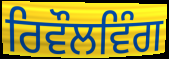
ਰਿਵੌਲਵਿੰਗ